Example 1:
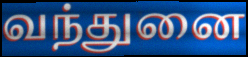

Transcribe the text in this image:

வந்துனை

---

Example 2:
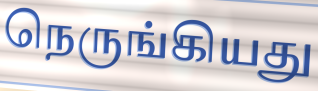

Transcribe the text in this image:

நெருங்கியது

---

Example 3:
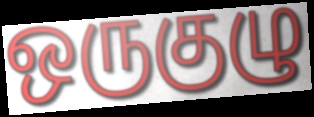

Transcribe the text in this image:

ஒருகுழு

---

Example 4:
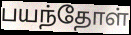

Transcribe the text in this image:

பயந்தோள்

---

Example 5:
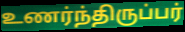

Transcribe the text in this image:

உணர்ந்திருப்பர்